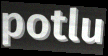
potlu